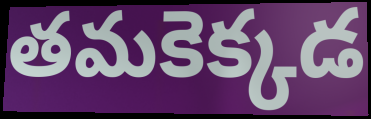
తమకెక్కడ